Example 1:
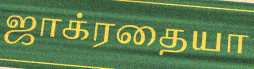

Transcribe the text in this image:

ஜாக்ரதையா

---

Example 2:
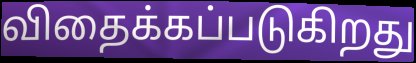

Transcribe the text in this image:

விதைக்கப்படுகிறது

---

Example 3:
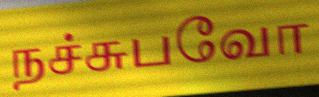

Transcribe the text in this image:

நச்சுபவோ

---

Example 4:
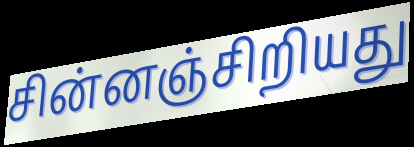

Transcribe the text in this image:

சின்னஞ்சிறியது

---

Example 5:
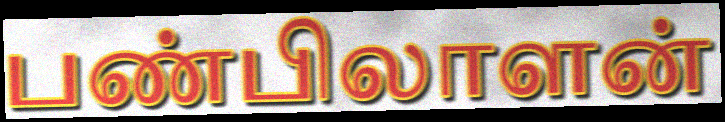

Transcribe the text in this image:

பண்பிலாளன்